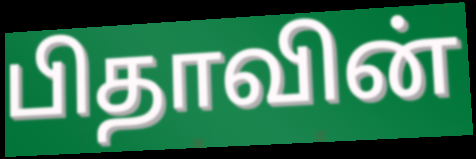
பிதாவின்